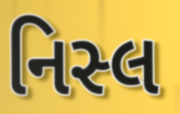
નિસ્લ